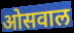
ओसवाल